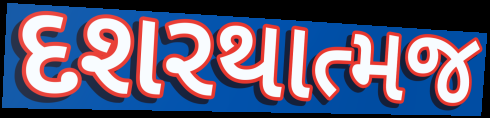
દશરથાત્મજ